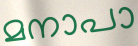
മനാപാ